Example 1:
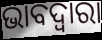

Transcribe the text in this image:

ଭାବଦ୍ଵାରା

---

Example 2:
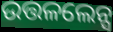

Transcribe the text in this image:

ଉତ୍ତଳଲେନ୍ସ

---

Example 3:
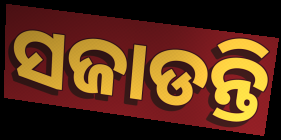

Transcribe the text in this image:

ସଜାଡନ୍ତି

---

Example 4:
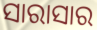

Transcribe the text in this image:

ସାରାସାର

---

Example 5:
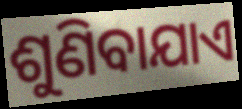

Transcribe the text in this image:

ଶୁଣିବାଯାଏ